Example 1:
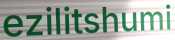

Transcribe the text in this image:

ezilitshumi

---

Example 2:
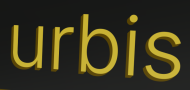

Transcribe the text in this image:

urbis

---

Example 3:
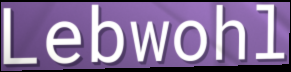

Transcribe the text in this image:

Lebwohl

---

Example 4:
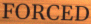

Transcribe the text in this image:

FORCED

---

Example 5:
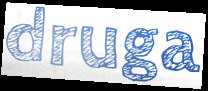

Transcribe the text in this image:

druga